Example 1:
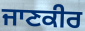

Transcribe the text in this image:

ਜਾਣਕੀਰ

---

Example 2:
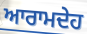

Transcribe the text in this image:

ਆਰਾਮਦੇਹ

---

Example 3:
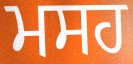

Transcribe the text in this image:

ਮਸਹ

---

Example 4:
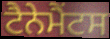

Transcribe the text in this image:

ਟੈਨੇਮੈਂਟਸ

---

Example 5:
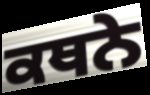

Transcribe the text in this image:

ਕਥਨੇ